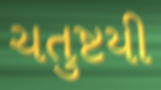
ચતુષ્ટયી